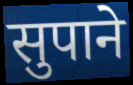
सुपाने